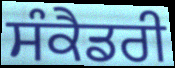
ਸੰਕੈਡਰੀ